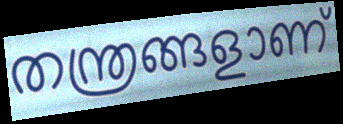
തന്ത്രങ്ങളാണ്